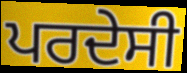
ਪਰਦੇਸੀ